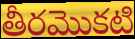
తీరమొకటి